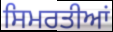
ਸਿਮਰਤੀਆਂ